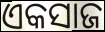
ଏକସାଜ